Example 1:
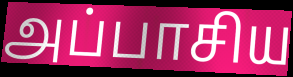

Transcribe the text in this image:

அப்பாசிய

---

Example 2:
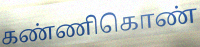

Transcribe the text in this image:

கண்ணிகொண்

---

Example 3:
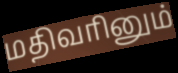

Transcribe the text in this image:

மதிவரினும்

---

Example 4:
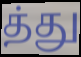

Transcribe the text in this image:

த்து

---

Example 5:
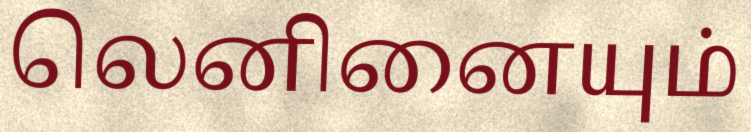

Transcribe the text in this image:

லெனினையும்